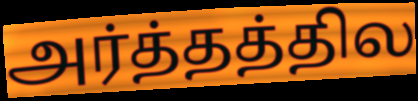
அர்த்தத்தில